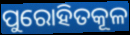
ପୁରୋହିତକୂଳ